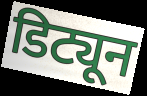
डिट्यून